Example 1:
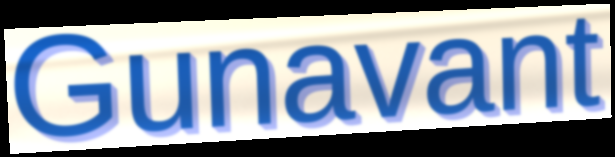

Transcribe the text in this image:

Gunavant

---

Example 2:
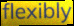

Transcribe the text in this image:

flexibly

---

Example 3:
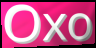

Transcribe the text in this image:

Oxo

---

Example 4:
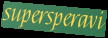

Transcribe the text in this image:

supersperavi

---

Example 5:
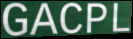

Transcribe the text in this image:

GACPL